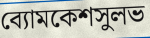
ব্যোমকেশসুলভ